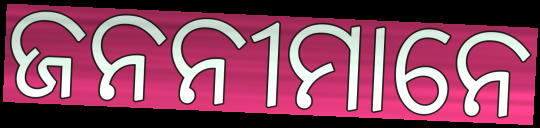
ଜନନୀମାନେ